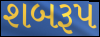
શબરૂપ